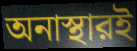
অনাস্থারই